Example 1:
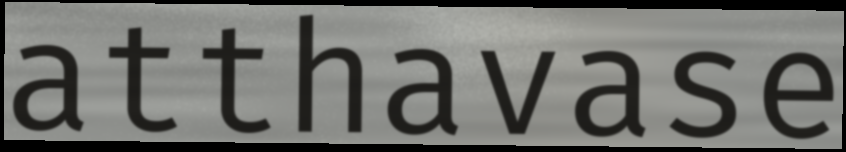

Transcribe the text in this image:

atthavase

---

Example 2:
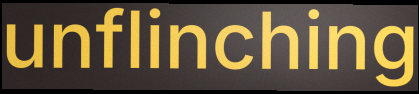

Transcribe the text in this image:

unflinching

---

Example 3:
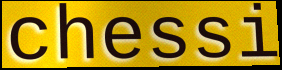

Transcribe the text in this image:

chessi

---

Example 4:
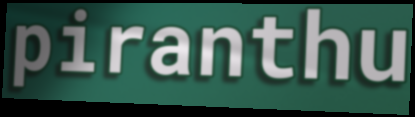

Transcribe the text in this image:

piranthu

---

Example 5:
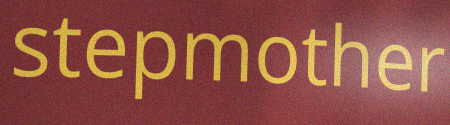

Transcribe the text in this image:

stepmother